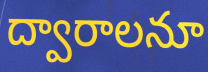
ద్వారాలనూ